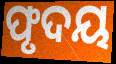
ଫୃଦୟ